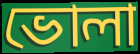
ভোলা